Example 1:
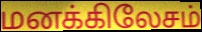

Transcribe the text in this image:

மனக்கிலேசம்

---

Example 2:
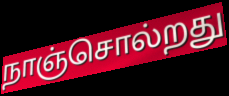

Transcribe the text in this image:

நாஞ்சொல்றது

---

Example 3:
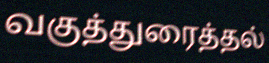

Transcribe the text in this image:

வகுத்துரைத்தல்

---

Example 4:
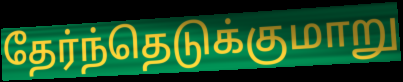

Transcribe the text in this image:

தேர்ந்தெடுக்குமாறு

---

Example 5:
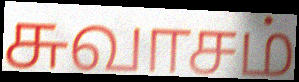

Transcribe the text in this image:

சுவாசம்